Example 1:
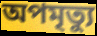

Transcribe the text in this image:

অপমৃত্যু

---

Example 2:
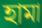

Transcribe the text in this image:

হামা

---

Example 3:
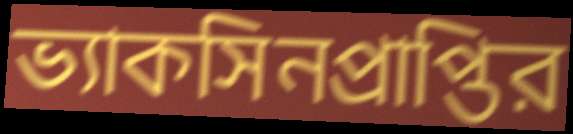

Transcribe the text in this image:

ভ্যাকসিনপ্রাপ্তির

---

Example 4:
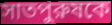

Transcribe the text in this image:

সাতপুরুষকে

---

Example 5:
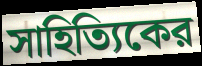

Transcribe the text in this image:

সাহিত্যিকের